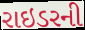
રાઇડરની